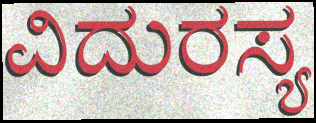
ವಿದುರಸ್ಯ